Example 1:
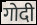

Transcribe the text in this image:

गोदी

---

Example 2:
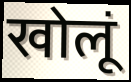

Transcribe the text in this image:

खोलूं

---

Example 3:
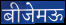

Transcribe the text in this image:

बीजेमऊ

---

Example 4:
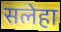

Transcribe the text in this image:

सलेहा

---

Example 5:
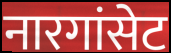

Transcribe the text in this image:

नारगांसेट